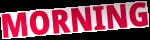
MORNING